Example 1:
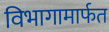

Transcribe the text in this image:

विभागामार्फत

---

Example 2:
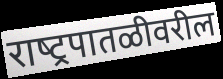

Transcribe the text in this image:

राष्ट्रपातळीवरील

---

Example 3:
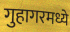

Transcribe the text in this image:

गुहागरमध्ये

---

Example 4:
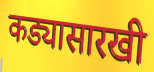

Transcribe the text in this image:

कड्यासारखी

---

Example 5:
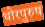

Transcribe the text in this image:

थोरपुरुष